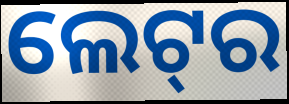
ଲେଟ୍‌ର